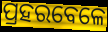
ପ୍ରହରବେଳେ